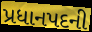
પ્રધાનપદની